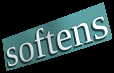
softens